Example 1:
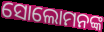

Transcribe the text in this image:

ସୋଲୋମନଙ୍କ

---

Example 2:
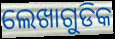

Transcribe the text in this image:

ଲେଖାଗୁଡିକ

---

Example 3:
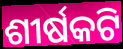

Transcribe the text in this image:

ଶୀର୍ଷକଟି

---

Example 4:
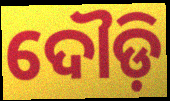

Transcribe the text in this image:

ଦୌଡ଼ି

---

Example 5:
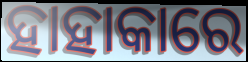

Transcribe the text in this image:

ହାହାକାରେ